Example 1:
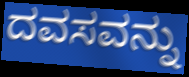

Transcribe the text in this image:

ದವಸವನ್ನು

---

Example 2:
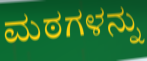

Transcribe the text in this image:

ಮಠಗಳನ್ನು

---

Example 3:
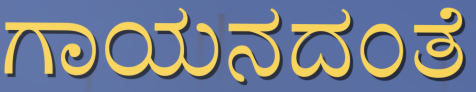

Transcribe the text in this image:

ಗಾಯನದಂತೆ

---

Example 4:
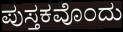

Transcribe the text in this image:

ಪುಸ್ತಕವೊಂದು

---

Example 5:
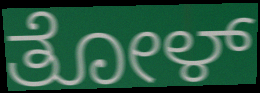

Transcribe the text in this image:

ತೋಳ್